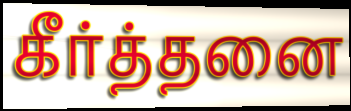
கீர்த்தனை